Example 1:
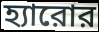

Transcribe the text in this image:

হ্যারোর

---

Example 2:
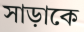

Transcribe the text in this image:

সাড়াকে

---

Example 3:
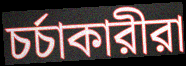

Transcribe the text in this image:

চর্চাকারীরা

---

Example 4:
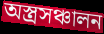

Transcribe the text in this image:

অস্ত্রসঞ্চালন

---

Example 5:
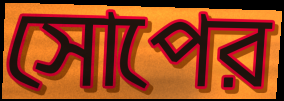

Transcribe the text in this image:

সোপের